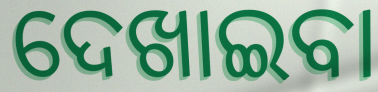
ଦେଖାଇବା